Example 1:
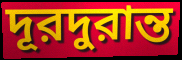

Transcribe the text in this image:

দূরদুরান্ত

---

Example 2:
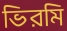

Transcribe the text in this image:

ভিরমি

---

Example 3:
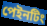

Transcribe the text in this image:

পেইনটিং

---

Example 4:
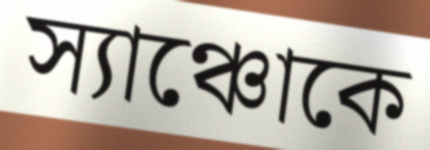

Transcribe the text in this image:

স্যাঞ্চোকে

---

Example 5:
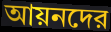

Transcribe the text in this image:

আয়নদের